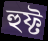
হুফ্ট